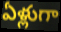
ఏళ్లుగా